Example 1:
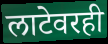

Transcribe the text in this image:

लाटेवरही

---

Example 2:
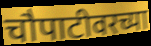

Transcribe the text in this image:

चौपाटीवरच्या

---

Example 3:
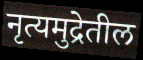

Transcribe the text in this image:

नृत्यमुद्रेतील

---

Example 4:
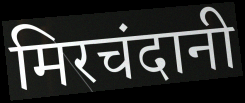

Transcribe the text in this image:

मिरचंदानी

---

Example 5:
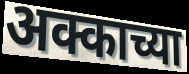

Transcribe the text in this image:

अक्काच्या